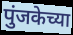
पुंजकेच्या